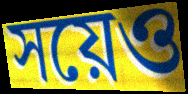
সয়েও